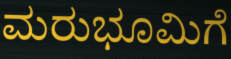
ಮರುಭೂಮಿಗೆ